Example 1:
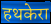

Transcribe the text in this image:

हथकेरा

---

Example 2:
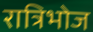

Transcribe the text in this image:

रात्रिभोज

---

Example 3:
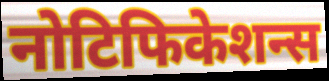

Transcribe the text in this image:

नोटिफिकेशन्स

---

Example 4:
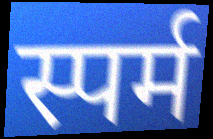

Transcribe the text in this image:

स्पर्म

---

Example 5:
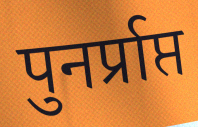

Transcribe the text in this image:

पुनर्प्राप्त